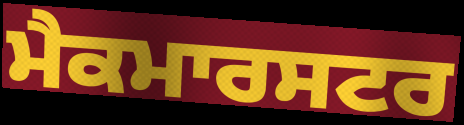
ਮੈਕਮਾਰਸਟਰ